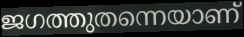
ജഗത്തുതന്നെയാണ്